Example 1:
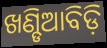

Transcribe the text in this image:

ଖଣ୍ଡିଆବିଡ଼ି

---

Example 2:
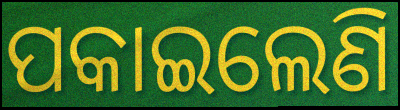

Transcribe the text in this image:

ପକାଇଲେଣି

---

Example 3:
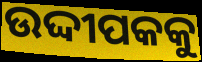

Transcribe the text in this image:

ଉଦ୍ଦୀପକକୁ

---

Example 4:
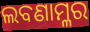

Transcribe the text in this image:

ଲବଣାମ୍ଳର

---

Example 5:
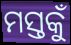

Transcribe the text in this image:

ମସ୍ତକୁଁ